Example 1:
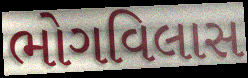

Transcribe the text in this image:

ભોગવિલાસ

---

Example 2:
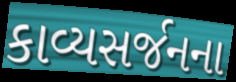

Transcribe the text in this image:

કાવ્યસર્જનના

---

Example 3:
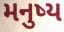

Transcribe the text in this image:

મનુષ્ય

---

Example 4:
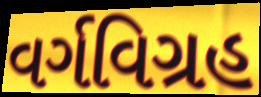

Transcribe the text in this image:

વર્ગવિગ્રહ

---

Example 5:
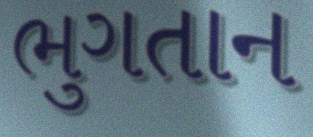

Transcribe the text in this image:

ભુગતાન